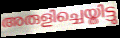
അരുളിച്ചെയ്തിട്ടു